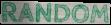
RANDOM